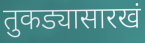
तुकड्यासारखं